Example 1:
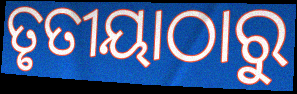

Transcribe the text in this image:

ତୃତୀୟାଠାରୁ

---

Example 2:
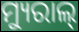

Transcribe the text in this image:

ମ୍ୟୁରାଲ୍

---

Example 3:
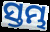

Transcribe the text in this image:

ସ୍ତମ୍ଭ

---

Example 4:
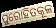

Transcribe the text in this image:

ପୁରୋହିତକୂଳ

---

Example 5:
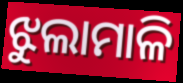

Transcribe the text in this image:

ଝୁଲାମାଳି